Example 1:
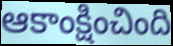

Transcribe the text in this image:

ఆకాంక్షించింది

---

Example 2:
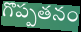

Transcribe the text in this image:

గొప్పతనం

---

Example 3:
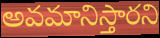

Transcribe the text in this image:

అవమానిస్తారని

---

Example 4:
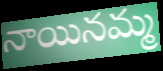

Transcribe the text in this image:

నాయినమ్మ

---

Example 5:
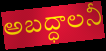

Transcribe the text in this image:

అబద్ధాలనీ